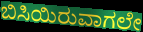
ಬಿಸಿಯಿರುವಾಗಲೇ